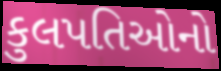
કુલપતિઓનો